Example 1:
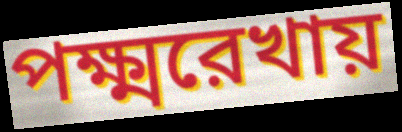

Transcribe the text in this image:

পক্ষ্মরেখায়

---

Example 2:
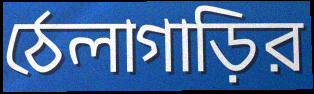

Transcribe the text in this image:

ঠেলাগাড়ির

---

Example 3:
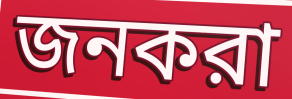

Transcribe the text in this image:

জনকরা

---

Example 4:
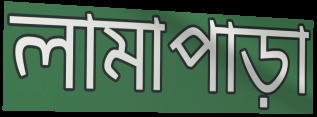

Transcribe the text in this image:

লামাপাড়া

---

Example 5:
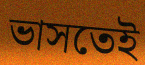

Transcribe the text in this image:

ভাসতেই